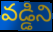
వడ్డిని